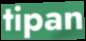
tipan